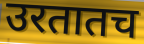
उरतातच